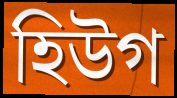
হিউগ